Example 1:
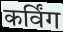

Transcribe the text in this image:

कर्विंग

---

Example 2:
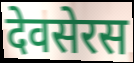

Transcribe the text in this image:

देवसेरस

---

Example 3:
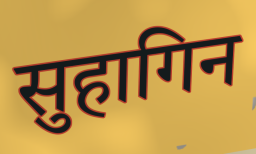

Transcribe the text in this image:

सुहागिन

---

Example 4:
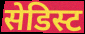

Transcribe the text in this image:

सेडिस्ट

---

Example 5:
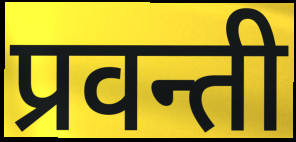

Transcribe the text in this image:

प्रवन्ती